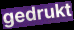
gedrukt